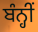
ਬੰਨ੍ਹੀਂ